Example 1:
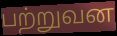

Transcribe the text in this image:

பற்றுவன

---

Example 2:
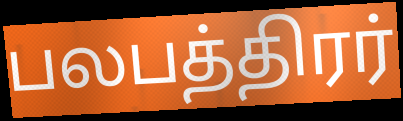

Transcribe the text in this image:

பலபத்திரர்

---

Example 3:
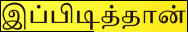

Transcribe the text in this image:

இப்பிடித்தான்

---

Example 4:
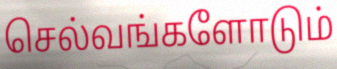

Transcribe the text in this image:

செல்வங்களோடும்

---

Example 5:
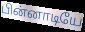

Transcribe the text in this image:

பின்னாடியே